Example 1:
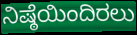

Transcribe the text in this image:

ನಿಷ್ಠೆಯಿಂದಿರಲು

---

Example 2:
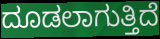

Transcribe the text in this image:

ದೂಡಲಾಗುತ್ತಿದೆ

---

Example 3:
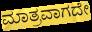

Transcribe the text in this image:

ಮಾತ್ರವಾಗದೇ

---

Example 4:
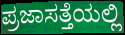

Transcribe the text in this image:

ಪ್ರಜಾಸತ್ತೆಯಲ್ಲಿ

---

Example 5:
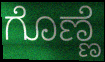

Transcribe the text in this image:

ಗೊಣ್ಣೆ